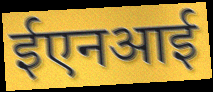
ईएनआई